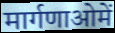
मार्गणाओमें